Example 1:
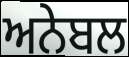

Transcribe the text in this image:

ਅਨੇਬਲ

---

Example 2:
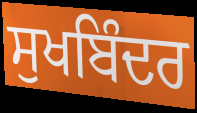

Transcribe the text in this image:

ਸੁਖਬਿੰਦਰ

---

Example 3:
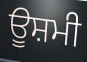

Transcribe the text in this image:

ਊਸ਼ਮੀ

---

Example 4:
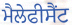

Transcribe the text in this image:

ਮੈਲੇਫੀਸੈਂਟ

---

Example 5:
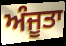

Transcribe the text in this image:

ਅੰਜੂਤਾ